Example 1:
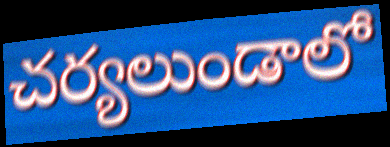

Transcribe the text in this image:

చర్యలుండాలో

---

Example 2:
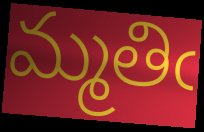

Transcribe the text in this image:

మ్మతిఁ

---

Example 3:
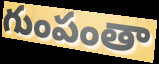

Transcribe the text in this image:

గుంపంతా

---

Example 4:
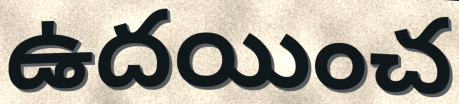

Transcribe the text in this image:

ఉదయించ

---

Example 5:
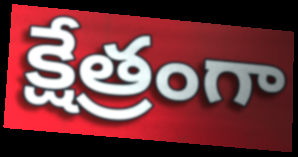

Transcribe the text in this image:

క్షేత్రంగా